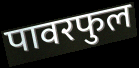
पावरफुल